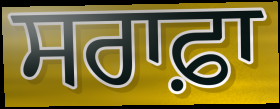
ਸਰਾਫ਼ਾ